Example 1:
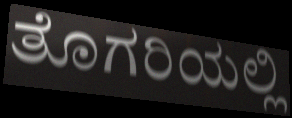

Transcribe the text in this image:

ತೊಗರಿಯಲ್ಲಿ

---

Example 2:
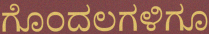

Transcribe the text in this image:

ಗೊಂದಲಗಳಿಗೂ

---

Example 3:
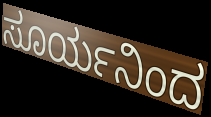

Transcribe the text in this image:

ಸೂರ್ಯನಿಂದ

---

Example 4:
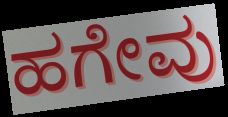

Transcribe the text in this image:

ಹಗೇವು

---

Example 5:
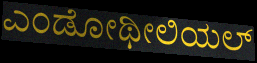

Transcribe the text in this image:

ಎಂಡೋಥೀಲಿಯಲ್